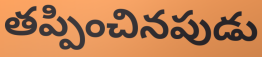
తప్పించినపుడు